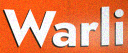
Warli